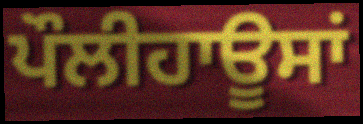
ਪੌਲੀਹਾਊਸਾਂ